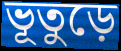
ভূতুড়ে